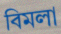
বিমলা